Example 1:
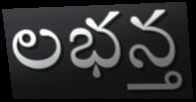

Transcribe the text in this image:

లభన్త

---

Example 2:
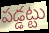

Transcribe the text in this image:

పడ్డట్టు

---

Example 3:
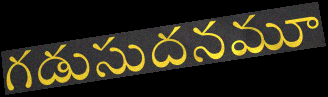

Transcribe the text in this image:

గడుసుదనమూ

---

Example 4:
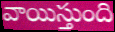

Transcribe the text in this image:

వాయిస్తుంది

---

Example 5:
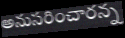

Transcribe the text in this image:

అనుసరించారన్న